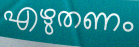
എഴുതണം